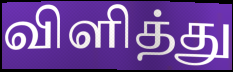
விளித்து